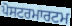
ਪੋਸਟਰਮਾਰਟਮ